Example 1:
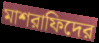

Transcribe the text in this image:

মাশরাফিদের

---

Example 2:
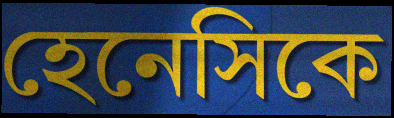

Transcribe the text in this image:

হেনেসিকে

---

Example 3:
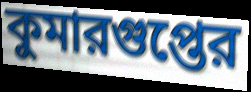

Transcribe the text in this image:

কুমারগুপ্তের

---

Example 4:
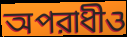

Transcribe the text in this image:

অপরাধীও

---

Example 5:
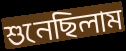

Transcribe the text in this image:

শুনেছিলাম